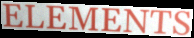
ELEMENTS